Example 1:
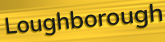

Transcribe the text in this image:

Loughborough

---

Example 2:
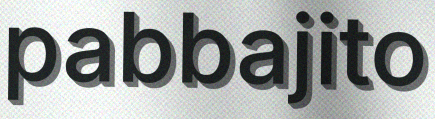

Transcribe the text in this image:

pabbajito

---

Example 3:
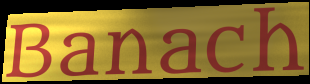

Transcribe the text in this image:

Banach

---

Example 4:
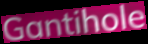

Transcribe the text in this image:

Gantihole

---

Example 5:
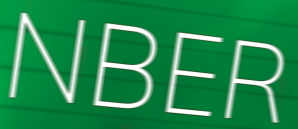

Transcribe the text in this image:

NBER